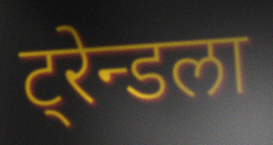
ट्रेन्डला